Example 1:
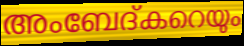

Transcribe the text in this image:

അംബേദ്കറെയും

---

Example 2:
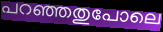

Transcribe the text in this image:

പറഞ്ഞതുപോലെ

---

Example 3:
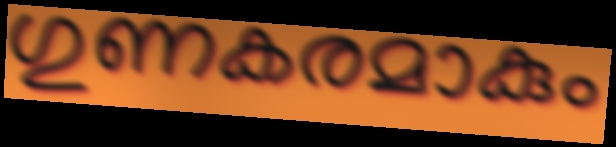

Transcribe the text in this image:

ഗുണകരമാകും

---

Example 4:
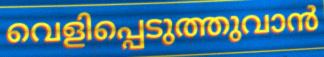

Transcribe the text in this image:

വെളിപ്പെടുത്തുവാൻ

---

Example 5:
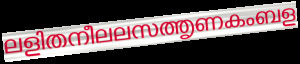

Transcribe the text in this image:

ലളിതനീലലസത്തൃണകംബള